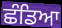
ਛੰਡਿਆ